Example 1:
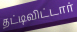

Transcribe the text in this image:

தட்டிவிட்டார்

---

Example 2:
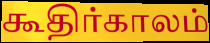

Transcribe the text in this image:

கூதிர்காலம்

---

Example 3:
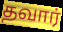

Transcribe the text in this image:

தவார்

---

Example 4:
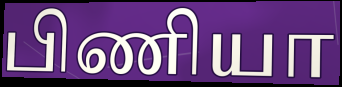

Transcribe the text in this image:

பிணியா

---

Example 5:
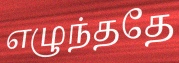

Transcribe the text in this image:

எழுந்ததே